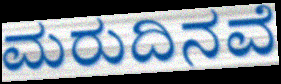
ಮರುದಿನವೆ